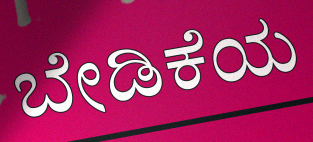
ಬೇಡಿಕೆಯ